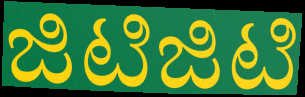
ಜಿಟಿಜಿಟಿ